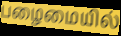
பழைமையில்